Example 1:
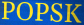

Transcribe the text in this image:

POPSK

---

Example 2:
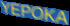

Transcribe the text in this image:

YEPOKA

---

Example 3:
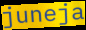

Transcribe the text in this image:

juneja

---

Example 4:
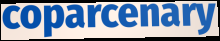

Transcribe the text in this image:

coparcenary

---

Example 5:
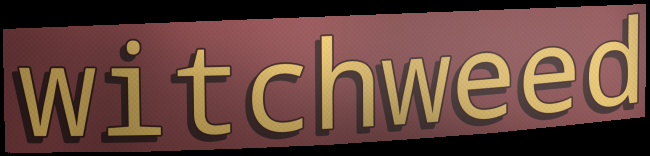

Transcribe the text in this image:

witchweed